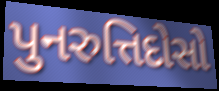
પુનરુત્તિદોસો